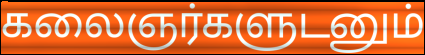
கலைஞர்களுடனும்